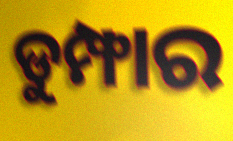
ଡୁମ୍ଫାର